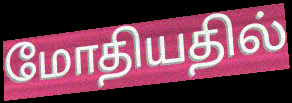
மோதியதில்